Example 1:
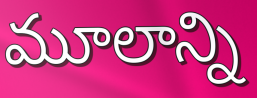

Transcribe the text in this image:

మూలాన్ని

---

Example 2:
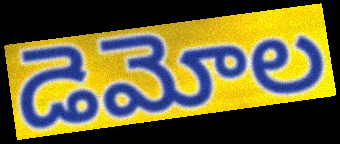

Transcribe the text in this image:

డెమోల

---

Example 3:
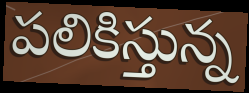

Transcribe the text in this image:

పలికిస్తున్న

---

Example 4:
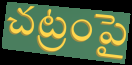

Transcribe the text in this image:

చట్రంపై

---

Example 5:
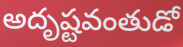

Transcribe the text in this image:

అదృష్టవంతుడో